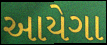
આયેગા